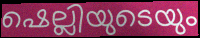
ഷെല്ലിയുടെയും